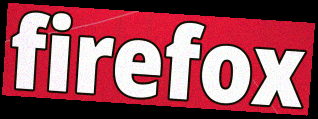
firefox